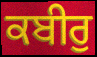
ਕਬੀਰੁ